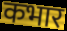
कभार